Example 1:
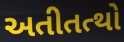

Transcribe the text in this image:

અતીતત્થો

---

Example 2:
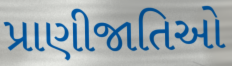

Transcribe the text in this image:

પ્રાણીજાતિઓ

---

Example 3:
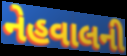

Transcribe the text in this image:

નેહવાલની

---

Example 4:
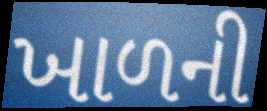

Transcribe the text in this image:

ખાળની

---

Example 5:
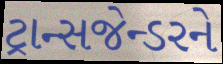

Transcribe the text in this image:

ટ્રાન્સજેન્ડરને